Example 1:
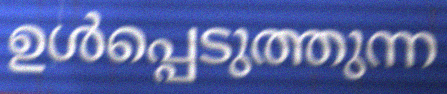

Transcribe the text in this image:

ഉൾപ്പെടുത്തുന്ന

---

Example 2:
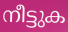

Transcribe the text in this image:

നീട്ടുക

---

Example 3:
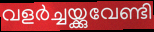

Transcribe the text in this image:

വളർച്ചയ്ക്കുവേണ്ടി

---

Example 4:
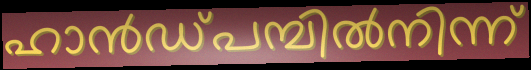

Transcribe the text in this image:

ഹാൻഡ്പമ്പിൽനിന്ന്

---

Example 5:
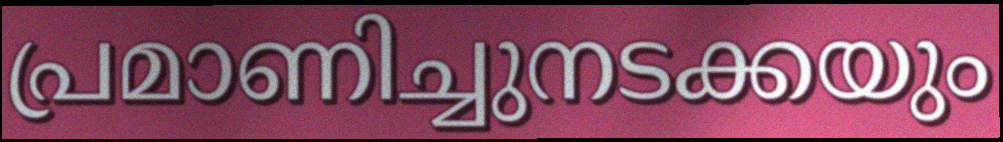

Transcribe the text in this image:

പ്രമാണിച്ചുനടക്കയും